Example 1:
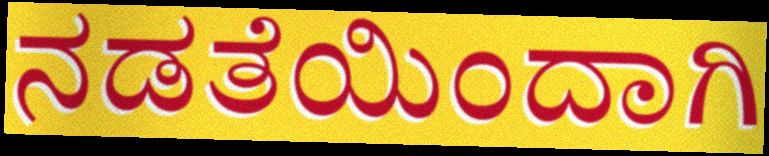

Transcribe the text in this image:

ನಡತೆಯಿಂದಾಗಿ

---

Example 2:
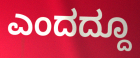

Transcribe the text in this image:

ಎಂದದ್ದೂ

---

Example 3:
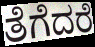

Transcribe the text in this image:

ತೆಗೆದರೆ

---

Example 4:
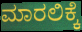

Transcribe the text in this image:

ಮಾರಲಿಕ್ಕೆ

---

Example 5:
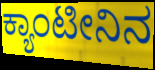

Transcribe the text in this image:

ಕ್ಯಾಂಟೀನಿನ